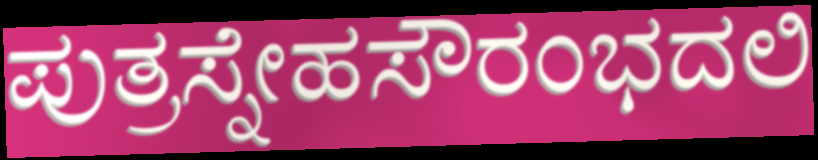
ಪುತ್ರಸ್ನೇಹಸೌರಂಭದಲಿ